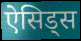
ऐसिड्स